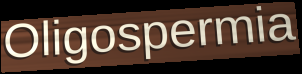
Oligospermia